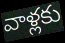
వాళ్లకు